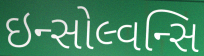
ઇન્સોલ્વન્સિ